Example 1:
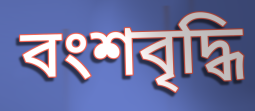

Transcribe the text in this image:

বংশবৃদ্ধি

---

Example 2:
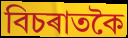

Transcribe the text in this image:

বিচৰাতকৈ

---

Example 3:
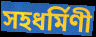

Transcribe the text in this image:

সহধৰ্মিণী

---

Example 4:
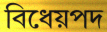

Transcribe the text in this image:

বিধেয়পদ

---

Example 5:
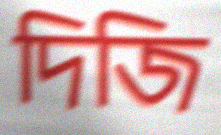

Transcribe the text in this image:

দিজি